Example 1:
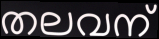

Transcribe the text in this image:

തലവന്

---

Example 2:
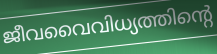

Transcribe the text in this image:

ജീവവൈവിധ്യത്തിന്റെ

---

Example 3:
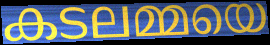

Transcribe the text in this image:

കടലമ്മയെ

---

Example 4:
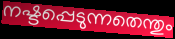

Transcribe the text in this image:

നഷ്ടപ്പെടുന്നതെന്തും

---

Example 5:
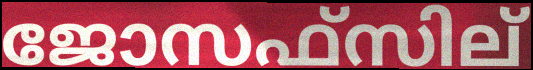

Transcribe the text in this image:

ജോസഫ്സില്